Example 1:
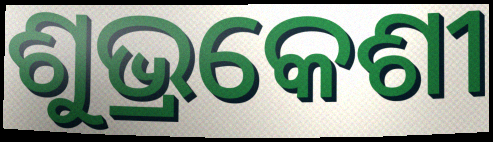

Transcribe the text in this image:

ଶୁଭ୍ରକେଶୀ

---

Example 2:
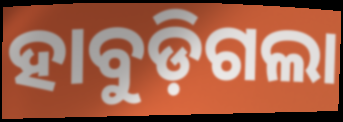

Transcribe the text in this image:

ହାବୁଡ଼ିଗଲା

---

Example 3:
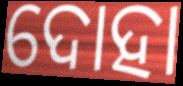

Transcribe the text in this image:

ଦୋହା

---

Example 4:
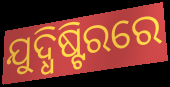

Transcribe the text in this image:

ଯୁଦ୍ଧିଷ୍ଟିରରେ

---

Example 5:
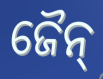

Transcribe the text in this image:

ଜୈନ୍